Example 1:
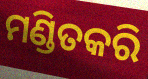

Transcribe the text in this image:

ମଣ୍ଡିତକରି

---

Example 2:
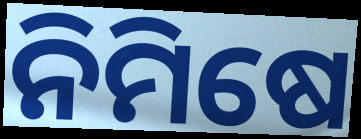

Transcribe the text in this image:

ନିମିଷେ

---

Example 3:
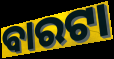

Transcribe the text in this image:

ବାରଟା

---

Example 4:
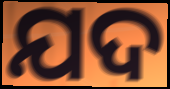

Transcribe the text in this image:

ଯଦ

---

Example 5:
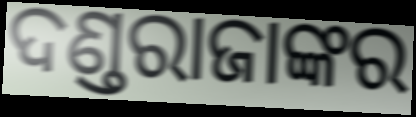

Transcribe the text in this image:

ଦଣ୍ଡରାଜାଙ୍କର